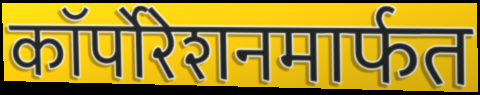
कॉर्पोरेशनमार्फत